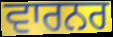
ਵਾਰਨਰ